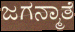
ಜಗನ್ಮಾತೆ